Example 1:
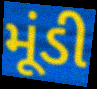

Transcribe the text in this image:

મૂંડી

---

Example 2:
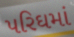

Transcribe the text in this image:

પરિઘમાં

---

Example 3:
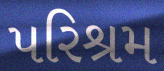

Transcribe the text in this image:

પરિશ્રમ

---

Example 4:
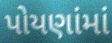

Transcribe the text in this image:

પોયણાંમાં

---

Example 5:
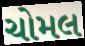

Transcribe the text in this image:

ચોમલ